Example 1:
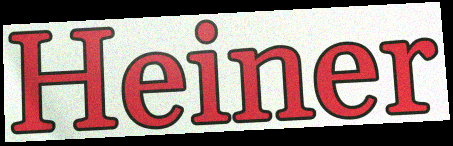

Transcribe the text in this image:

Heiner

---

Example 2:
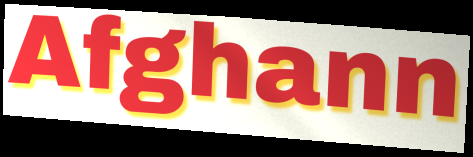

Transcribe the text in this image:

Afghann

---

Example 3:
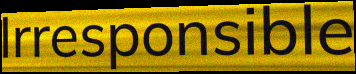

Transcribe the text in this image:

Irresponsible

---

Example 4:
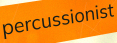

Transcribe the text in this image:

percussionist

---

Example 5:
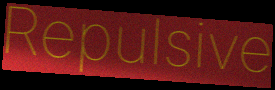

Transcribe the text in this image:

Repulsive